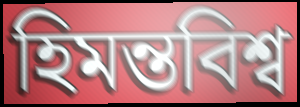
হিমন্তবিশ্ব